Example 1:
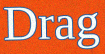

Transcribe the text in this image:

Drag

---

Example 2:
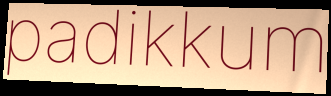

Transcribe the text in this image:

padikkum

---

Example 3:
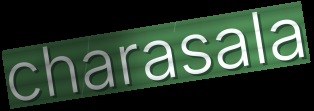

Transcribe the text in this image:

charasala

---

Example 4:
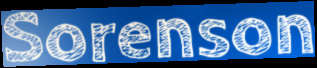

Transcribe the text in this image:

Sorenson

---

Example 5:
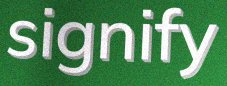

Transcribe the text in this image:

signify